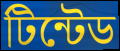
টিন্টেড